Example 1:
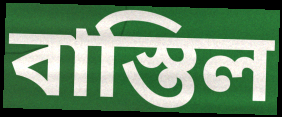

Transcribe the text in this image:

বাস্তিল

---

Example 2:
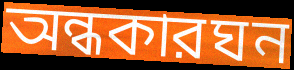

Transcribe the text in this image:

অন্ধকারঘন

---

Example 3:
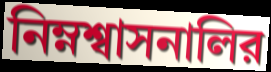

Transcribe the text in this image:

নিম্নশ্বাসনালির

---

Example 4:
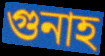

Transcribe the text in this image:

গুনাহ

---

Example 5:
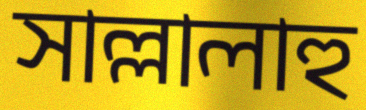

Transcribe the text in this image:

সাল্লালাহু